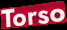
Torso